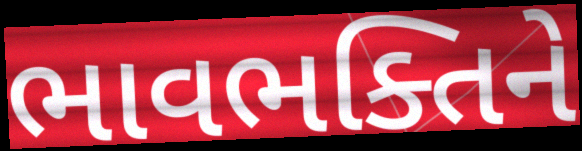
ભાવભક્તિને